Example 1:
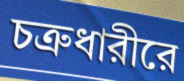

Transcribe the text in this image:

চত্রুধারীরে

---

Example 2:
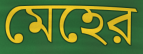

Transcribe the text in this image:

মেহের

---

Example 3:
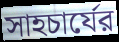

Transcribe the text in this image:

সাহচার্যের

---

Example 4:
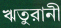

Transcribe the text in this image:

ঋতুরানী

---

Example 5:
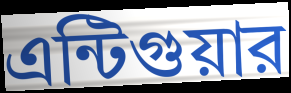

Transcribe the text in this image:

এন্টিগুয়ার